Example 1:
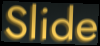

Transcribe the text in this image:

Slide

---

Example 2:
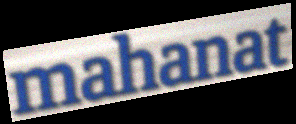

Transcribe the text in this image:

mahanat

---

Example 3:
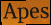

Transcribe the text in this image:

Apes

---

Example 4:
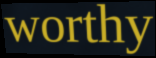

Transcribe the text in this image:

worthy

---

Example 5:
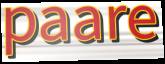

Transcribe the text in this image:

paare